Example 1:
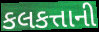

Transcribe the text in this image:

કલકત્તાની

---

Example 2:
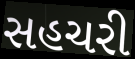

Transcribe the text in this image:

સહચરી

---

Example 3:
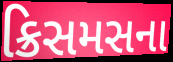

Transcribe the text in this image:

ક્રિસમસના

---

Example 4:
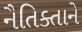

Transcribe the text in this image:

નૈતિક્તાને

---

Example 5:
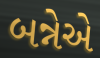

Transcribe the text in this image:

બન્નેએ